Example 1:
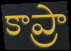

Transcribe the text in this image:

కాప్రా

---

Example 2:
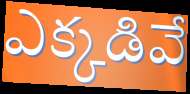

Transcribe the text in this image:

ఎక్కడివే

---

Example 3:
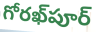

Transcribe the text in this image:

గోరఖ్‌పూర్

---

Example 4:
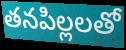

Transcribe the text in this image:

తనపిల్లలతో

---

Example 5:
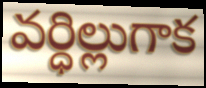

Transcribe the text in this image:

వర్ధిల్లుగాక